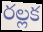
రల్లక